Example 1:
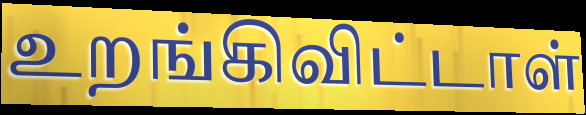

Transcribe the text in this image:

உறங்கிவிட்டாள்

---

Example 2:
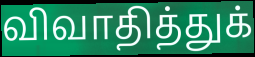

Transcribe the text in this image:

விவாதித்துக்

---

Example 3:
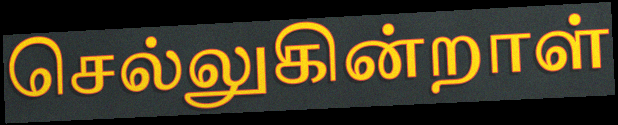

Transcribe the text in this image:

செல்லுகின்றாள்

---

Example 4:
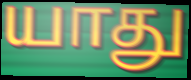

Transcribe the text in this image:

யாது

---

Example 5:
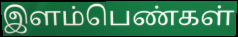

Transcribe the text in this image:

இளம்பெண்கள்